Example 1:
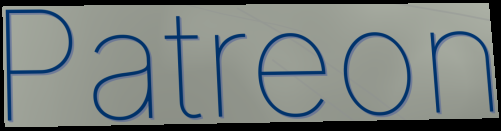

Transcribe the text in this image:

Patreon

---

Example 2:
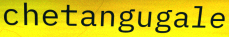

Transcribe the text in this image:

chetangugale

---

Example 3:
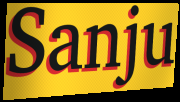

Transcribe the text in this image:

Sanju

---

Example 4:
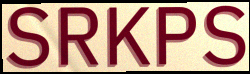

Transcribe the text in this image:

SRKPS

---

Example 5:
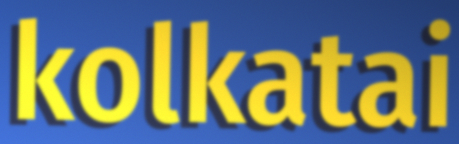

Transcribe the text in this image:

kolkatai